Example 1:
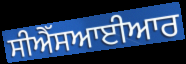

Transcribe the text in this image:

ਸੀਐੱਸਆਈਆਰ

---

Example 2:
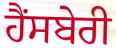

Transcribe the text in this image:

ਹੈਂਸਬੇਰੀ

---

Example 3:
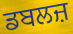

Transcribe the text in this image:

ਡਬਲਜ਼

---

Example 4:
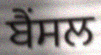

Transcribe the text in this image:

ਬੈਂਸਲ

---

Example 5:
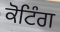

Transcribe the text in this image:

ਕੋਟਿੰਗ